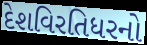
દેશવિરતિધરનો